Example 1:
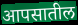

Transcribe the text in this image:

आपसातील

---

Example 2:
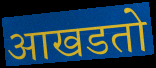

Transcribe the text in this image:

आखडतो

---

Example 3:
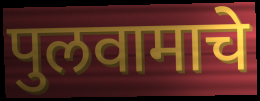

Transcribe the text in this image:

पुलवामाचे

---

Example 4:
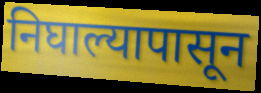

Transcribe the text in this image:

निघाल्यापासून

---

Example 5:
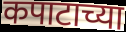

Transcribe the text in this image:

कपाटाच्या